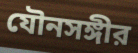
যৌনসঙ্গীর